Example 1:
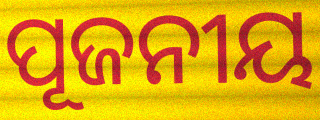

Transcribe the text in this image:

ପୂଜନୀୟ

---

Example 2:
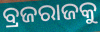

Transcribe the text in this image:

ବ୍ରଜରାଜକୁ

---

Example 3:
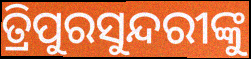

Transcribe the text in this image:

ତ୍ରିପୁରସୁନ୍ଦରୀଙ୍କୁ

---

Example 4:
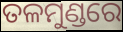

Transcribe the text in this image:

ତଳମୁଣ୍ଡରେ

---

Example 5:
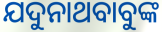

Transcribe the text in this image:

ଯଦୁନାଥବାବୁଙ୍କ